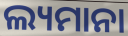
ଲ୍ୟମାନା